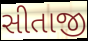
સીતાજી